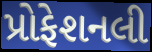
પ્રોફેશનલી